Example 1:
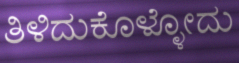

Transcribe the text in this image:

ತಿಳಿದುಕೊಳ್ಳೋದು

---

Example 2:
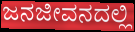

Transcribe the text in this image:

ಜನಜೀವನದಲ್ಲಿ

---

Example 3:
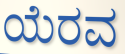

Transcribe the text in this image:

ಯೆರವ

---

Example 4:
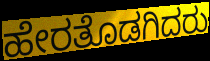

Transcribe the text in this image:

ಹೇರತೊಡಗಿದರು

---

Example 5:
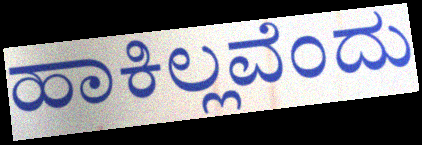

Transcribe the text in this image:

ಹಾಕಿಲ್ಲವೆಂದು